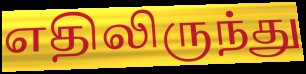
எதிலிருந்து